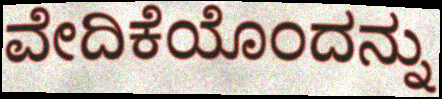
ವೇದಿಕೆಯೊಂದನ್ನು